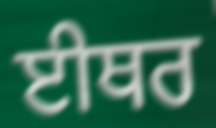
ਈਥਰ